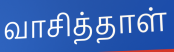
வாசித்தாள்